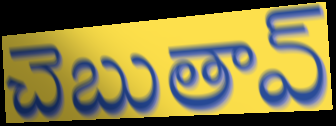
చెబుతావ్